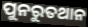
ପୁନରୁତଥାନ